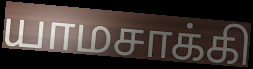
யாமசாக்கி